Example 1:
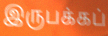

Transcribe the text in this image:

இருபக்கப்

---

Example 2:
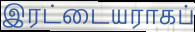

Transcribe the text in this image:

இரட்டையராகப்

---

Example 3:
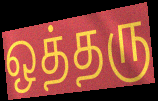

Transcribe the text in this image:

ஒத்தரு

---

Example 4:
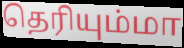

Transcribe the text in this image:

தெரியும்மா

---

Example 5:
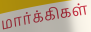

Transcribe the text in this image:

மார்க்கிகள்